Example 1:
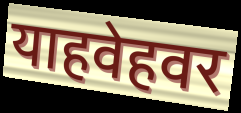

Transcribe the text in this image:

याहवेहवर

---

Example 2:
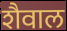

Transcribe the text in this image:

शैवाल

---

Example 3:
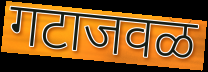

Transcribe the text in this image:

गटाजवळ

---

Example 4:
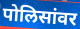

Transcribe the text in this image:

पोलिसांवर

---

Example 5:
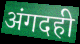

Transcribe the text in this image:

अंगदही